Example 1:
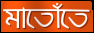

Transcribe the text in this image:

মাতোঁতে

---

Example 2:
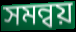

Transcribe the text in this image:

সমন্বয়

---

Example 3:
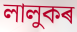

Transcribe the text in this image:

লালুকৰ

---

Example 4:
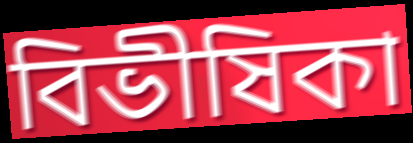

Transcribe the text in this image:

বিভীষিকা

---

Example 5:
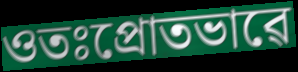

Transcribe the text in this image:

ওতঃপ্ৰোতভাৱে